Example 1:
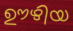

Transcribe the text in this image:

ഊഴിയ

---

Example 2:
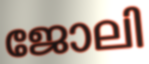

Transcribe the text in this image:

ജോലി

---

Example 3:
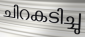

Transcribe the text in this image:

ചിറകടിച്ചു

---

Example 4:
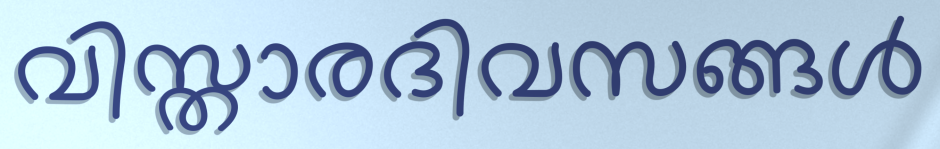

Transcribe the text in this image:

വിസ്താരദിവസങ്ങൾ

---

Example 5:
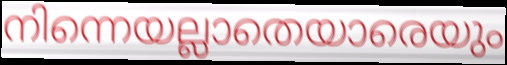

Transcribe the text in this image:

നിന്നെയല്ലാതെയാരെയും